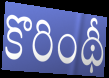
కొరింథీ